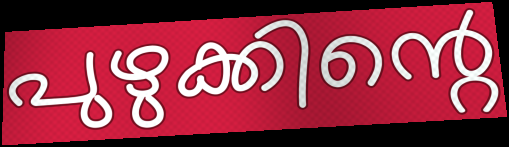
പുഴുക്കിന്റെ